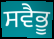
ਸਵੈਭੂ